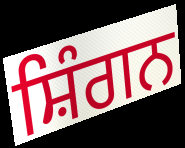
ਸ਼ਿੰਗਨ